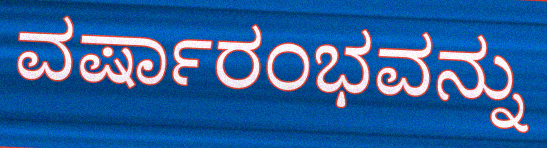
ವರ್ಷಾರಂಭವನ್ನು